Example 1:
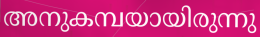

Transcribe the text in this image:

അനുകമ്പയായിരുന്നു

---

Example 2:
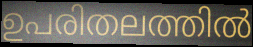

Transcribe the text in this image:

ഉപരിതലത്തിൽ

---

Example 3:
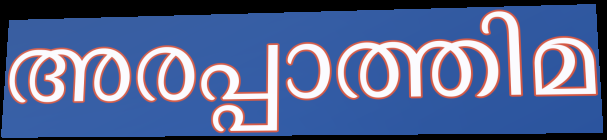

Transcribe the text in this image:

അരപ്പാത്തിമ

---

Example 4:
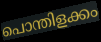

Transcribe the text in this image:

പൊന്തിളക്കം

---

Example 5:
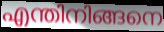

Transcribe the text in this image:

എന്തിനിങ്ങനെ